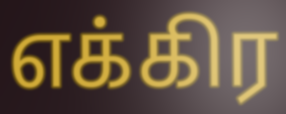
எக்கிர